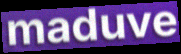
maduve